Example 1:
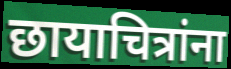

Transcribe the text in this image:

छायाचित्रांना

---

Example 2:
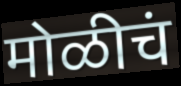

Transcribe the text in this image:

मोळीचं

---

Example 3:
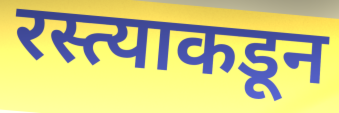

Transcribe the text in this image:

रस्त्याकडून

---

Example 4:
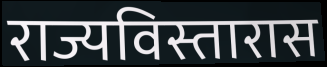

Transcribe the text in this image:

राज्यविस्तारास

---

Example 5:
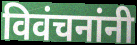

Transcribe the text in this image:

विवंचनांनी